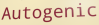
Autogenic